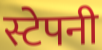
स्टेपनी